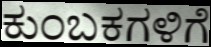
ಕುಂಬಕಗಳಿಗೆ